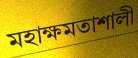
মহাক্ষমতাশালী